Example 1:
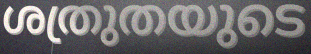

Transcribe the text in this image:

ശത്രുതയുടെ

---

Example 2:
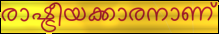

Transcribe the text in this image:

രാഷ്ട്രീയക്കാരനാണ്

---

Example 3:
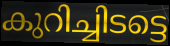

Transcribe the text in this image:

കുറിച്ചിടട്ടെ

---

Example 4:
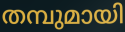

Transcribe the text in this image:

തമ്പുമായി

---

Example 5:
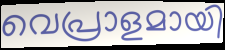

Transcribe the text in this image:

വെപ്രാളമായി